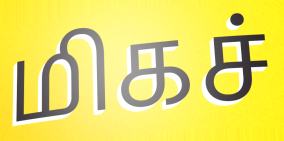
மிகச்